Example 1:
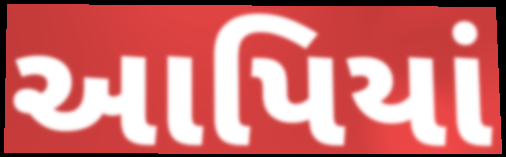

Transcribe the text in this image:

આપિયાં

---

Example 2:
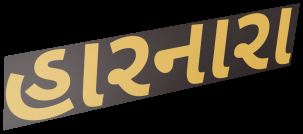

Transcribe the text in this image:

હારનારા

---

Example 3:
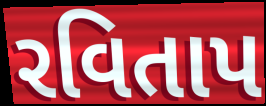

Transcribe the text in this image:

રવિતાપ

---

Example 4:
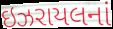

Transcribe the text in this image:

ઇઝરાયલનાં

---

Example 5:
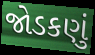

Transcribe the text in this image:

જોડકણું